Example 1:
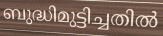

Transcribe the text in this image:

ബുദ്ധിമുട്ടിച്ചതിൽ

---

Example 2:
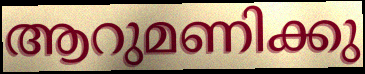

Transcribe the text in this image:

ആറുമണിക്കു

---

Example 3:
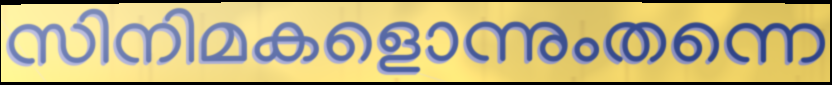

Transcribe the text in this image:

സിനിമകളൊന്നുംതന്നെ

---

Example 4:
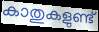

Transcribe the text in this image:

കാതുകളുണ്ട്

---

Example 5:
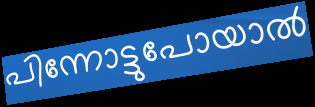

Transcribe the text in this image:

പിന്നോട്ടുപോയാൽ